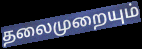
தலைமுறையும்